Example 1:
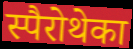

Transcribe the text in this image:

स्पैरोथेका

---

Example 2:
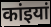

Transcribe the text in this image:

कांइयां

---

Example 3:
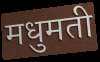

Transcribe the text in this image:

मधुमती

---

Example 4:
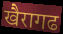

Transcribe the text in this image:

खैरागढ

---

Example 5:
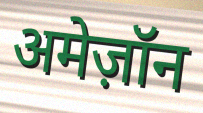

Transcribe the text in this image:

अमेज़ॉन